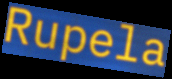
Rupela